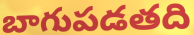
బాగుపడతది